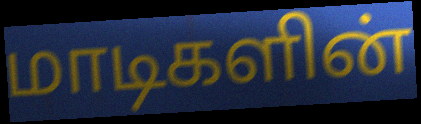
மாடிகளின்